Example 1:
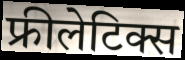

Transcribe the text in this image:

फ्रीलेटिक्स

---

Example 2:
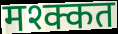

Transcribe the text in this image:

मश्क्कत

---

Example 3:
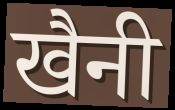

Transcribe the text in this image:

खैनी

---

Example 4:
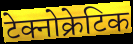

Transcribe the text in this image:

टेक्नोक्रेटिक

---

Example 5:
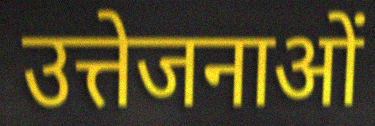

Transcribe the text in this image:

उत्तेजनाओं